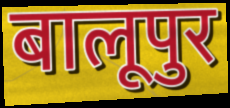
बालूपुर